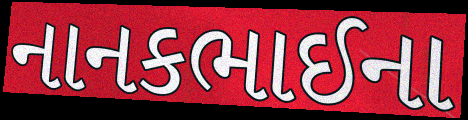
નાનકભાઈના